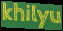
khilyu